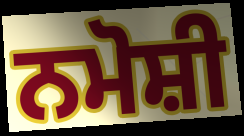
ਨਮੋਸ਼ੀ